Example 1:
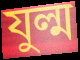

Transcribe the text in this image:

যুল্ম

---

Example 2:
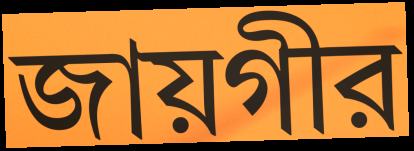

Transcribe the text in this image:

জায়গীর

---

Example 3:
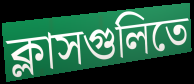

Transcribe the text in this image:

ক্লাসগুলিতে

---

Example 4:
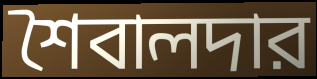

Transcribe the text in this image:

শৈবালদার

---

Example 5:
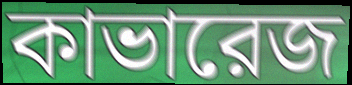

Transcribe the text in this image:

কাভারেজ